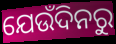
ଯେଉଁଦିନରୁ